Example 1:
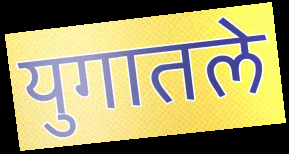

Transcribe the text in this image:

युगातले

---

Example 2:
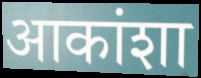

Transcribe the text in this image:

आकांशा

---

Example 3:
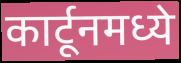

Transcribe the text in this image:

कार्टूनमध्ये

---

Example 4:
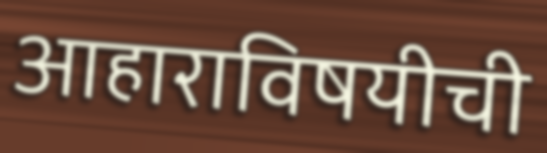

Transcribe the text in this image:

आहाराविषयीची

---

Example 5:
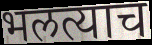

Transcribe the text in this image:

भलत्याच